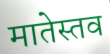
मातेस्तव